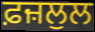
ਫ਼ਜ਼ਲੁਲ